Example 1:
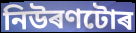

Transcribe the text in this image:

নিউৰণটোৰ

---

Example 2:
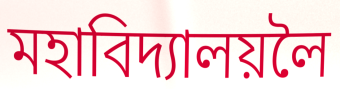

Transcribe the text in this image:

মহাবিদ্যালয়লৈ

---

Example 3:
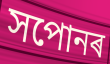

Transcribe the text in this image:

সপোনৰ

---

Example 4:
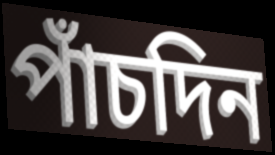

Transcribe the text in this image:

পাঁচদিন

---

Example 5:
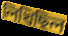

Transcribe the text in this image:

লিখিছিল